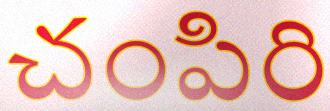
చంపిరి